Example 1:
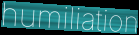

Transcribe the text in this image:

humiliation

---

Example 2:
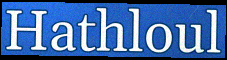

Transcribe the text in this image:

Hathloul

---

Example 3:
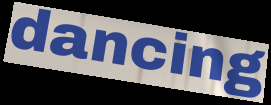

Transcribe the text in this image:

dancing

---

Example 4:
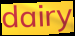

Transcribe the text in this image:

dairy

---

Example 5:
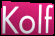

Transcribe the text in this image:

Kolf